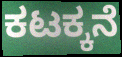
ಕಟಕ್ಕನೆ